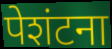
पेशंटना